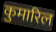
कुमारिल